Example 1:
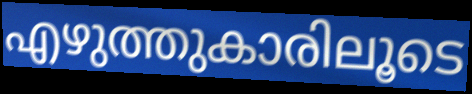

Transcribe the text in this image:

എഴുത്തുകാരിലൂടെ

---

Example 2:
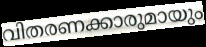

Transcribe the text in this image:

വിതരണക്കാരുമായും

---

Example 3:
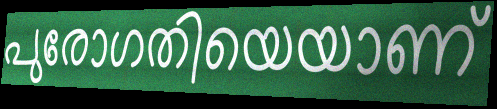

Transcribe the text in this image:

പുരോഗതിയെയാണ്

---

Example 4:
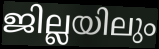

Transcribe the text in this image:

ജില്ലയിലും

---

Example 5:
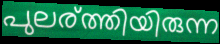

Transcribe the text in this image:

പുലര്ത്തിയിരുന്ന